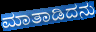
ಮಾತಾಡಿದನು